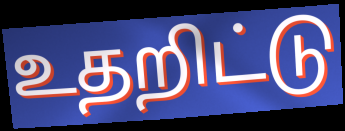
உதறிட்டு